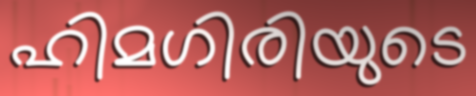
ഹിമഗിരിയുടെ